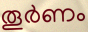
തൂർണം